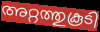
അറ്റത്തുകൂടി